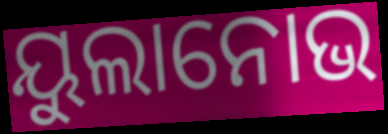
ୟୁଲାନୋଭ